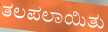
ತಲಪಲಾಯಿತು